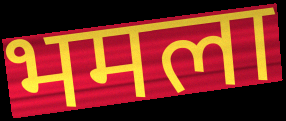
भमला